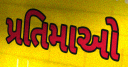
પ્રતિમાઓ